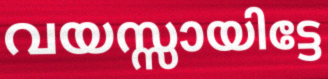
വയസ്സായിട്ടേ